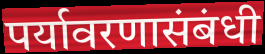
पर्यावरणासंबंधी